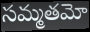
సమ్మతమో